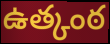
ఉత్కంఠ